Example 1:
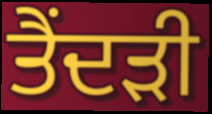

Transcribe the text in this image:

ਤੈਂਦੜੀ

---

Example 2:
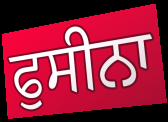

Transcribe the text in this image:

ਫੁਸੀਨਾ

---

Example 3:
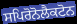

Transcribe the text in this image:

ਸਪਿਰੋਨੋਲੈਕਟੋਨ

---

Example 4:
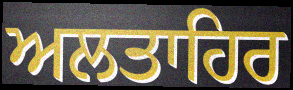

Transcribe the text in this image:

ਅਲਤਾਹਿਰ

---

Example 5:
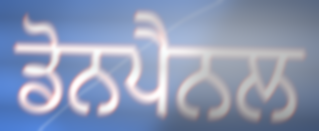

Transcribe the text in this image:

ਡੋਨਪੈਨਲ